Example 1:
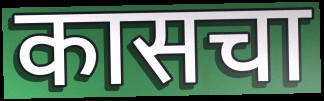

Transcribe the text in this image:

कासचा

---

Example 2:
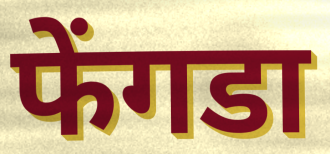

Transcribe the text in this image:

फेंगडा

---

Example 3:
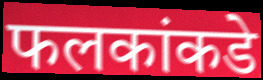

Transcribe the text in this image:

फलकांकडे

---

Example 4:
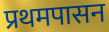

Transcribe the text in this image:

प्रथमपासन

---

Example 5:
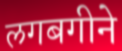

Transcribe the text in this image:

लगबगीने